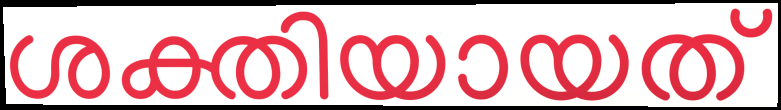
ശക്തിയായത്